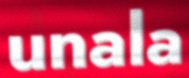
unala